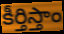
కీర్తిస్తాం